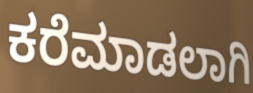
ಕರೆಮಾಡಲಾಗಿ